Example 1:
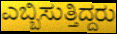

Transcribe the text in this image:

ಎಬ್ಬಿಸುತ್ತಿದ್ದರು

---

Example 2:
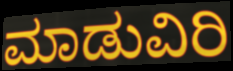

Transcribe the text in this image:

ಮಾಡುವಿರಿ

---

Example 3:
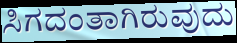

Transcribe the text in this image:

ಸಿಗದಂತಾಗಿರುವುದು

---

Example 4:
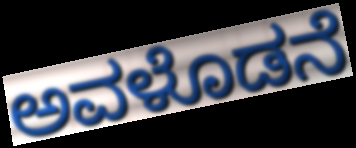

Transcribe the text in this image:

ಅವಳೊಡನೆ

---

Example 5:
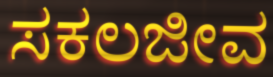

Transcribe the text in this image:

ಸಕಲಜೀವ